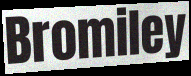
Bromiley